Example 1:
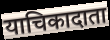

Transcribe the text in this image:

याचिकादाता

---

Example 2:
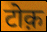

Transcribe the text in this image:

टोक़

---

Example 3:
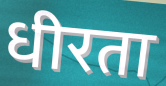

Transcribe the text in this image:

धीरता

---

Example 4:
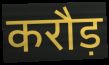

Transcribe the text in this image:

करौड़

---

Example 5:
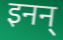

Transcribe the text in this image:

इनन्